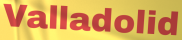
Valladolid